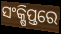
ସଂକ୍ଷିପ୍ତରେ